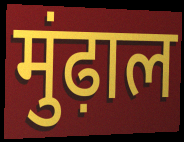
मुंढ़ाल